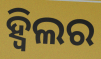
ହ୍ୱିଲର